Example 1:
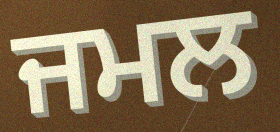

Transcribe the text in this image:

ਜਮਲ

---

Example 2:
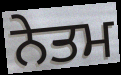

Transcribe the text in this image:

ਨੇਤਮ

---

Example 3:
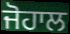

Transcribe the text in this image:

ਜੋਹਾਲ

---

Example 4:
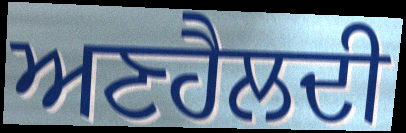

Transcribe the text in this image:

ਅਣਹੈਲਦੀ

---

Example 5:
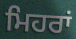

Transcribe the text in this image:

ਮਿਹਰਾਂ